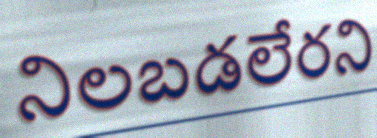
నిలబడలేరని